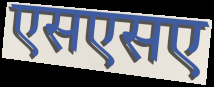
एसएसए